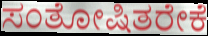
ಸಂತೋಷಿತರೇಕೆ